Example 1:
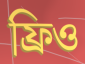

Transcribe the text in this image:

ফ্রিও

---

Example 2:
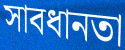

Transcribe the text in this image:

সাবধানতা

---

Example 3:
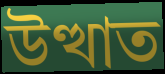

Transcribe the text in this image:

উত্থাত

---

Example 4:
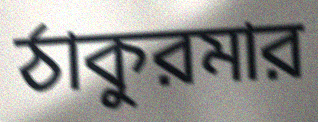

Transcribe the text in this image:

ঠাকুরমার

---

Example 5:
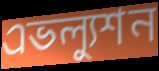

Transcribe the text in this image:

এভল্যুশন